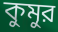
কুমুর